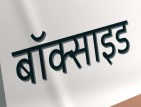
बॉक्साइड